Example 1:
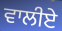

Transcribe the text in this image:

ਵਾਲੀਏ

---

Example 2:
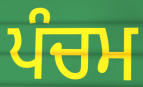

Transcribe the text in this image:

ਪੰਚਮ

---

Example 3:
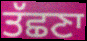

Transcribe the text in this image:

ਤੱਛਣਾ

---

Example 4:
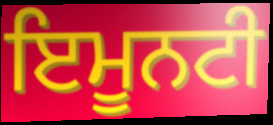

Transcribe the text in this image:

ਇਮੂਨਟੀ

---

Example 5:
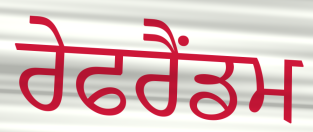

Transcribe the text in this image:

ਰੇਫਰੈਂਡਮ